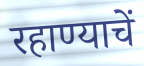
रहाण्याचें